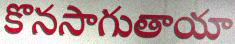
కొనసాగుతాయా